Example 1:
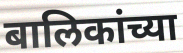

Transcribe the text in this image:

बालिकांच्या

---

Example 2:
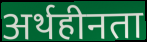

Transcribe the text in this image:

अर्थहीनता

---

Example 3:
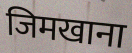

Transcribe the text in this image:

जिमखाना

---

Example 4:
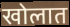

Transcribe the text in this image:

खोलात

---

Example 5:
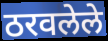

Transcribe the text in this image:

ठरवलेले